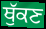
ਥੁੱਕਣ